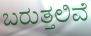
ಬರುತ್ತಲಿವೆ